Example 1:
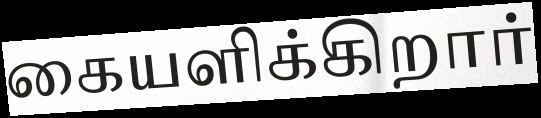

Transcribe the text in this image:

கையளிக்கிறார்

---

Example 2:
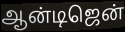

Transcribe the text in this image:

ஆன்டிஜென்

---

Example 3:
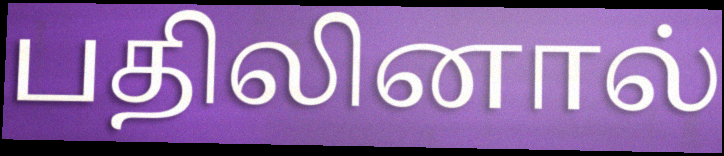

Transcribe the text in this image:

பதிலினால்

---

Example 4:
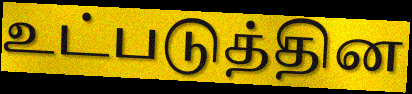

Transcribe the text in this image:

உட்படுத்தின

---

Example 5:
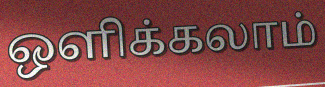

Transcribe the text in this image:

ஒளிக்கலாம்